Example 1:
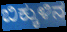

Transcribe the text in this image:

ಬಿಕ್ಕುಳಿನ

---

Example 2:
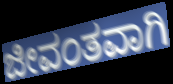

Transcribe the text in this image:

ಜೀವಂತವಾಗಿ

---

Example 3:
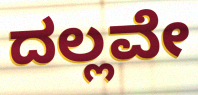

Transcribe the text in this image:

ದಲ್ಲವೇ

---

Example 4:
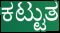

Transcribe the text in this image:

ಕಟ್ಟುತ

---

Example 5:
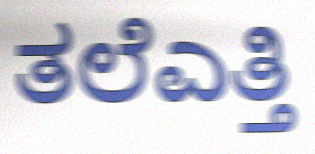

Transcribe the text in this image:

ತಲೆಎತ್ತಿ